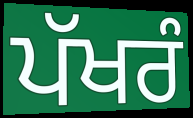
ਪੱਖਰੰ